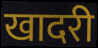
खादरी